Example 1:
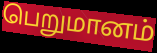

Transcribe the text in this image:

பெறுமானம்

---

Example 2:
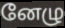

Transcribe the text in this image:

னேழு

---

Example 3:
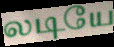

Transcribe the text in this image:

லடியே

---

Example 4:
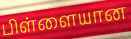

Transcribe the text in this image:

பிள்ளையான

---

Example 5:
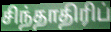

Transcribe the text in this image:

சிந்தாதிரிப்